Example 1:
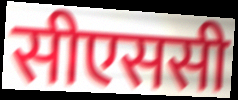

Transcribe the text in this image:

सीएससी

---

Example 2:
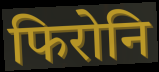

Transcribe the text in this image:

फिरोनि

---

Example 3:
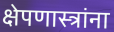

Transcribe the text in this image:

क्षेपणास्त्रांना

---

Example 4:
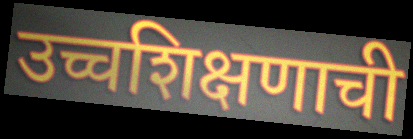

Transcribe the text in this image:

उच्चशिक्षणाची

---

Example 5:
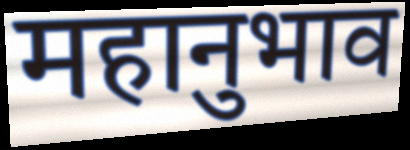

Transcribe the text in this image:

महानुभाव